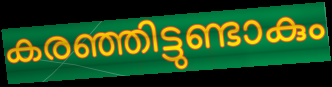
കരഞ്ഞിട്ടുണ്ടാകും